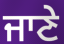
ਜਾਣੇ